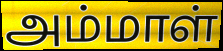
அம்மாள்